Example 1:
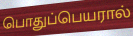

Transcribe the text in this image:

பொதுப்பெயரால்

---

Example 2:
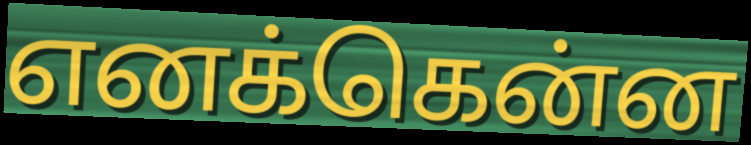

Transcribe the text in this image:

எனக்கென்ன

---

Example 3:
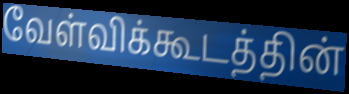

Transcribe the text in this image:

வேள்விக்கூடத்தின்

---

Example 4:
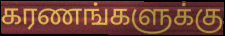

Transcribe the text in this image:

கரணங்களுக்கு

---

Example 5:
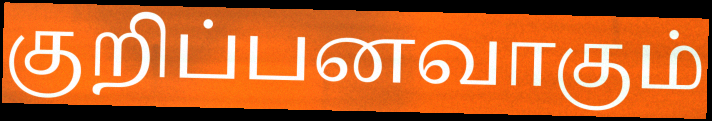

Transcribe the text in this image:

குறிப்பனவாகும்